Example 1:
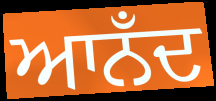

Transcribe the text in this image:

ਆਨਁਦ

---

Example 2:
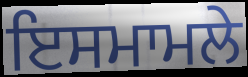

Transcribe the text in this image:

ਇਸਮਾਮਲੇ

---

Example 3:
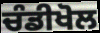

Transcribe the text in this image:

ਚੰਡੀਖੋਲ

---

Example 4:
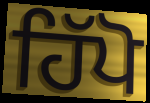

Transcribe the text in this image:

ਹਿੱਪੋ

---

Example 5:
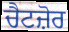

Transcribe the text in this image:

ਚੈਟਜ਼ੋਰ